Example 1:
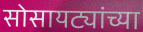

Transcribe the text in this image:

सोसायट्यांच्या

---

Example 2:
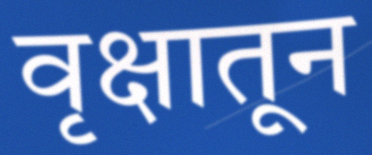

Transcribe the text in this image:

वृक्षातून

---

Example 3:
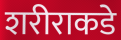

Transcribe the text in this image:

शरीराकडे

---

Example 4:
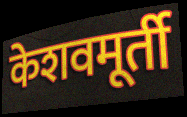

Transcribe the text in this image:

केशवमूर्ती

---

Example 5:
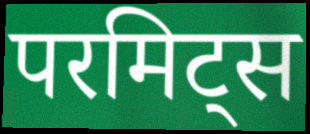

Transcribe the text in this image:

परमिट्स